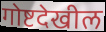
गोष्टदेखील